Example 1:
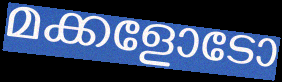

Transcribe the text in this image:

മക്കളോടോ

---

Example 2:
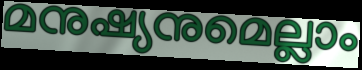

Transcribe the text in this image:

മനുഷ്യനുമെല്ലാം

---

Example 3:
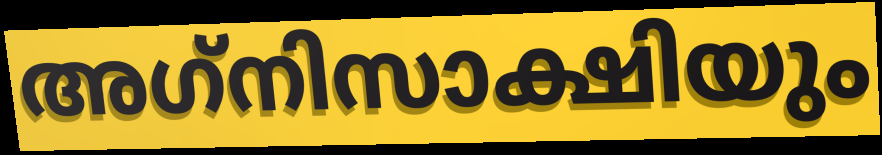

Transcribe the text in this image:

അഗ്‌നിസാക്ഷിയും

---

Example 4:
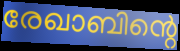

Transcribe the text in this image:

രേഖാബിന്റെ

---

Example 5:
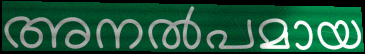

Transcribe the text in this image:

അനൽപമായ